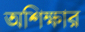
অশিক্ষার